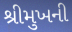
શ્રીમુખની